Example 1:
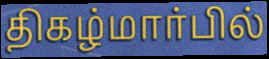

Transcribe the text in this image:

திகழ்மார்பில்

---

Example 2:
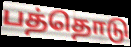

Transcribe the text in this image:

பத்தொடு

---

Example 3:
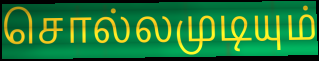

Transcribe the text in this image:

சொல்லமுடியும்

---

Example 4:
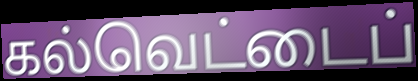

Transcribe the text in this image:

கல்வெட்டைப்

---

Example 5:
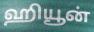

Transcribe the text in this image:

ஹியூன்